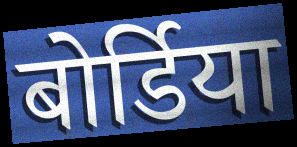
बोर्डिया